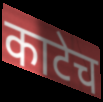
काटेच